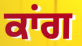
ਕਾਂਗ